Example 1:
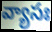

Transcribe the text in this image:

వ్యాసః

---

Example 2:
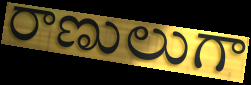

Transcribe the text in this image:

రాణులుగా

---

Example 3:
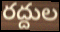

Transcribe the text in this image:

రద్దుల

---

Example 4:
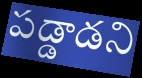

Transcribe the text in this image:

పడ్డాడని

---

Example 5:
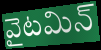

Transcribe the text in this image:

వైటమిన్